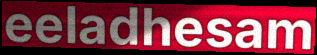
eeladhesam